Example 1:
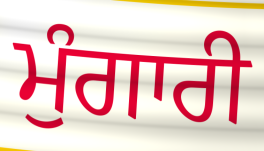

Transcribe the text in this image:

ਮੁੰਗਾਰੀ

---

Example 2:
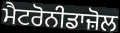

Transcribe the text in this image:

ਮੈਟਰੋਨੀਡਾਜ਼ੋਲ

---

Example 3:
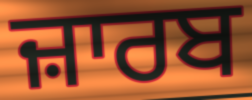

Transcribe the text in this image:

ਜ਼ਾਰਬ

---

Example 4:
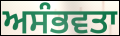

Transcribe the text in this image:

ਅਸੰਭਵਤਾ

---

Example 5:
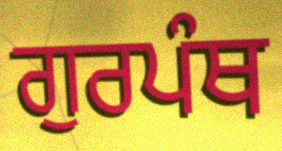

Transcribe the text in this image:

ਗੁਰਪੰਥ